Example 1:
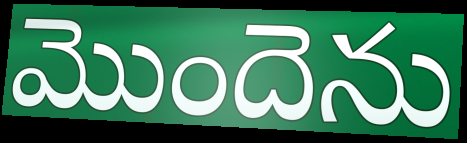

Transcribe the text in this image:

మొందెను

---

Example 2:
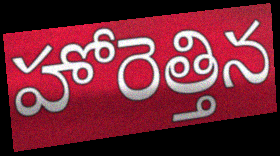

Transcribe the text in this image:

హోరెత్తిన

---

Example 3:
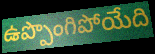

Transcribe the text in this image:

ఉప్పొంగిపోయేది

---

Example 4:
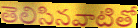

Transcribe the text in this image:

తెలిసినవాటితో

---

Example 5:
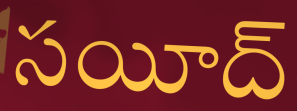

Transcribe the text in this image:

సయీద్